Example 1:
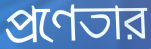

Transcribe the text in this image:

প্রণেতার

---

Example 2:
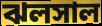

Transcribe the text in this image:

ঝলসাল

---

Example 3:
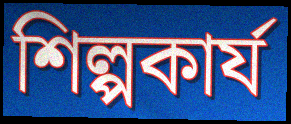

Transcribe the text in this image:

শিল্পকার্য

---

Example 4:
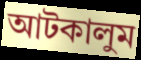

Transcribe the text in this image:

আটকালুম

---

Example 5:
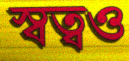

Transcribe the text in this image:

স্বত্বও